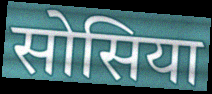
सोसिया